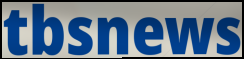
tbsnews